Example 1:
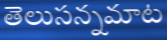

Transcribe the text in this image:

తెలుసన్నమాట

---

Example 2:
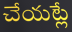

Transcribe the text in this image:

చేయట్లే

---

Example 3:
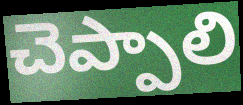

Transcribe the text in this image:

చెప్పాలి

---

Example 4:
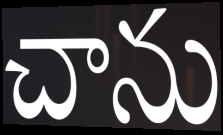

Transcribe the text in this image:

చాను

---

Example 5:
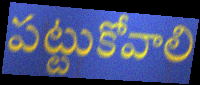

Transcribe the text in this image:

పట్టుకోవాలి